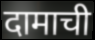
दामाची